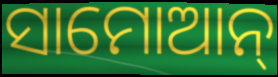
ସାମୋଆନ୍